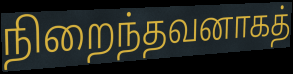
நிறைந்தவனாகத்